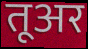
तूअर